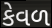
કેવળ